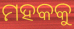
ମହକକୁ